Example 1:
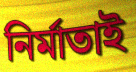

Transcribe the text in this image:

নিৰ্মাতাই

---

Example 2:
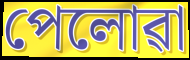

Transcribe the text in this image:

পেলোৱা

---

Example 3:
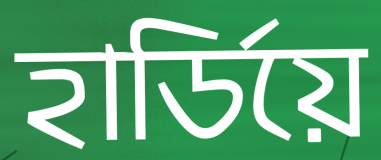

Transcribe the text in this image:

হাৰ্ডিয়ে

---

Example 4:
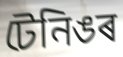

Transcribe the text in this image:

টেনিঙৰ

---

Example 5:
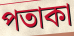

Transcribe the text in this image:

পতাকা